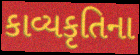
કાવ્યકૃતિના